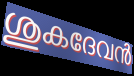
ശുകദേവൻ